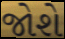
જોશે